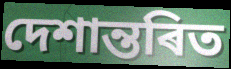
দেশান্তৰিত